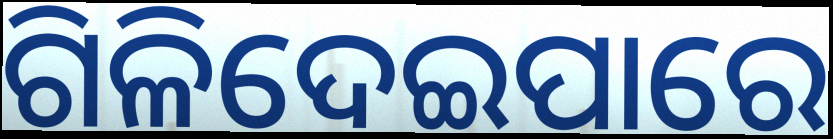
ଗିଳିଦେଇପାରେ